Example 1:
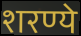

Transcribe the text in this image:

शरण्ये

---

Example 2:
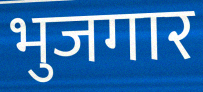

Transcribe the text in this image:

भुजगार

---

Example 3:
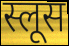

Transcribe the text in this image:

स्लूस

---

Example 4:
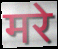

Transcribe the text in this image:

मरे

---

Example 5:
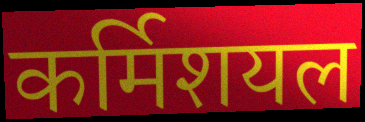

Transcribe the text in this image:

कर्मिशयल